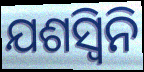
ଯଶସ୍ୱିନି